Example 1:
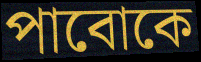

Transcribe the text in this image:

পাবোকে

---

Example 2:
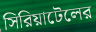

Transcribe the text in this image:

সিরিয়াটেলের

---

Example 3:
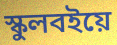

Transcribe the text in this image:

স্কুলবইয়ে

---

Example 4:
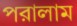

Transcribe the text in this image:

পরালাম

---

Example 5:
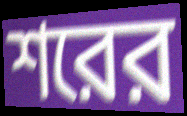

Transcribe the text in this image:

শরের